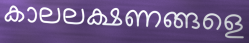
കാലലക്ഷണങ്ങളെ